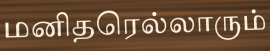
மனிதரெல்லாரும்